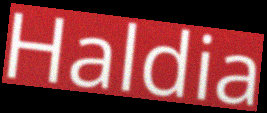
Haldia